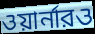
ওয়ার্নারও